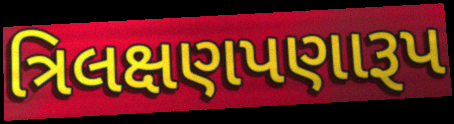
ત્રિલક્ષણપણારૂપ